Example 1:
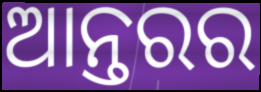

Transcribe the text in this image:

ଆନ୍ତରର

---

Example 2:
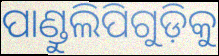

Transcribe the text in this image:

ପାଣ୍ଡୁଲିପିଗୁଡ଼ିକୁ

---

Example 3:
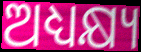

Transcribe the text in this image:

ଅଧ୍ୟକ୍ଷ୍ୟ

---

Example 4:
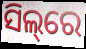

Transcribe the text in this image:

ସିଲ୍‌ରେ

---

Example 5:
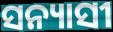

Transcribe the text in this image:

ସନ୍ୟାସୀ